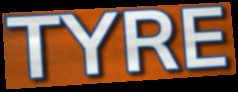
TYRE